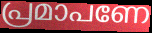
പ്രമാപണേ